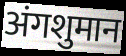
अंगशुमान